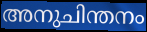
അനുചിന്തനം